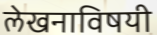
लेखनाविषयी